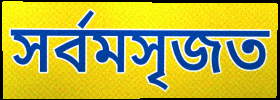
সর্বমসৃজত